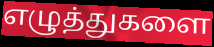
எழுத்துகளை